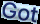
Got